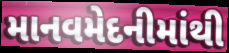
માનવમેદનીમાંથી